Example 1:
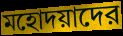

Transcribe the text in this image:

মহোদয়াদের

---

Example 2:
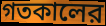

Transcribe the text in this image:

গতকালের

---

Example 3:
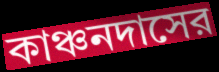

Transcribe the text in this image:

কাঞ্চনদাসের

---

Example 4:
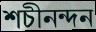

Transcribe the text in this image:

শচীনন্দন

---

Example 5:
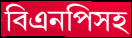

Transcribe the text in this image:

বিএনপিসহ